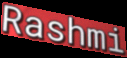
Rashmi